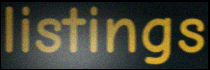
listings